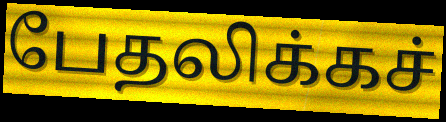
பேதலிக்கச்